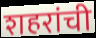
शहरांची